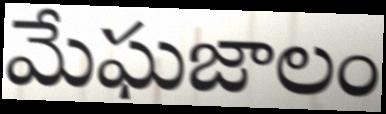
మేఘజాలం